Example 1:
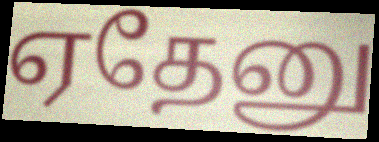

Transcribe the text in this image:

ஏதேனு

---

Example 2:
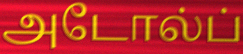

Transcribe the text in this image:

அடோல்ப்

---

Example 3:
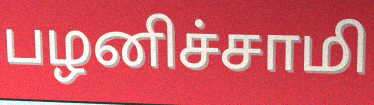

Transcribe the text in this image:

பழனிச்சாமி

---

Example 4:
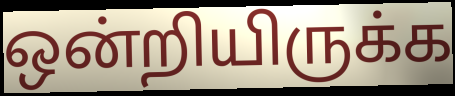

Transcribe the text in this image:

ஒன்றியிருக்க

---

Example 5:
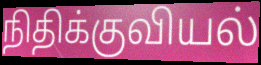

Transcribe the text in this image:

நிதிக்குவியல்